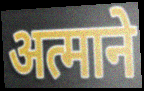
अत्माने